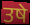
उषे